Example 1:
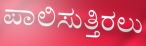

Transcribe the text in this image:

ಪಾಲಿಸುತ್ತಿರಲು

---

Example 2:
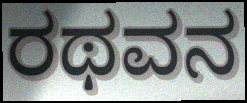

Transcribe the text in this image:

ರಥವನ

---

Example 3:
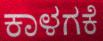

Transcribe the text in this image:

ಕಾಳಗಕೆ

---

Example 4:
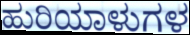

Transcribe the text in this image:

ಹುರಿಯಾಳುಗಳ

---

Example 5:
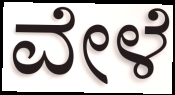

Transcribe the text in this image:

ವೇಳೆ